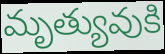
మృత్యువుకి